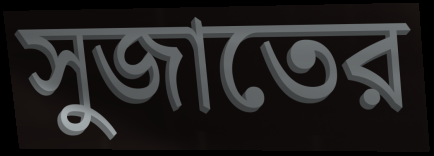
সুজাতের